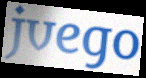
juego